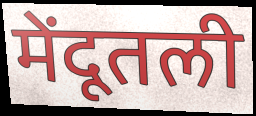
मेंदूतली